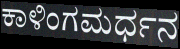
ಕಾಳಿಂಗಮರ್ಧನ